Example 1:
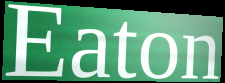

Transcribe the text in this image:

Eaton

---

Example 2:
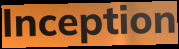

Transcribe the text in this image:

Inception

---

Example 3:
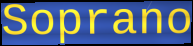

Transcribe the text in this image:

Soprano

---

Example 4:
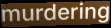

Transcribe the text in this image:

murdering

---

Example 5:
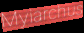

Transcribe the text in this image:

Myiarchus